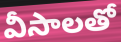
వీసాలతో